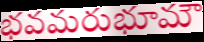
భవమరుభూమౌ